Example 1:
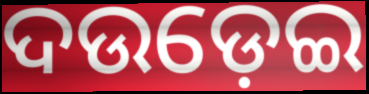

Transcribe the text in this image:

ଦଉଡ଼େଇ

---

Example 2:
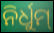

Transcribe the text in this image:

ନିର୍ଧୁମ୍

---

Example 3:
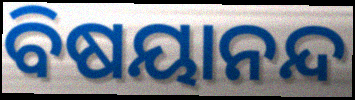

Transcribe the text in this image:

ବିଷୟାନନ୍ଦ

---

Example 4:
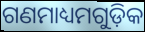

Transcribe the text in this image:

ଗଣମାଧ୍ୟମଗୁଡ଼ିକ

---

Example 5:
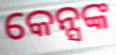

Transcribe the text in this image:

କେନ୍ସଙ୍କ